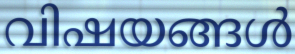
വിഷയങ്ങൾ